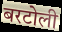
बरटोली